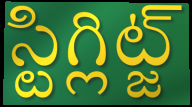
స్టిగ్లిట్జ్